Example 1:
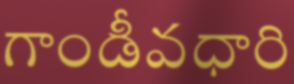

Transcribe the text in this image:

గాండీవధారి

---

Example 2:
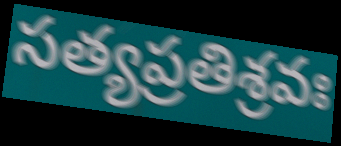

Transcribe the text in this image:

సత్యప్రతిశ్రవః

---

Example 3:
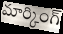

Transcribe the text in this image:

మార్కింగ్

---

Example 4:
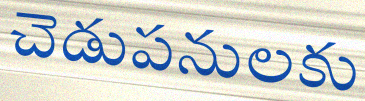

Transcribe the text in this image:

చెడుపనులకు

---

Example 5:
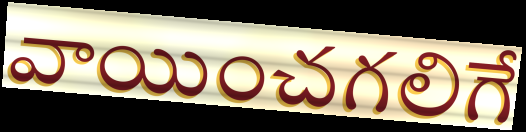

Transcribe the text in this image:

వాయించగలిగే